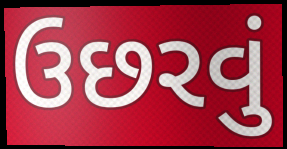
ઉછરવું